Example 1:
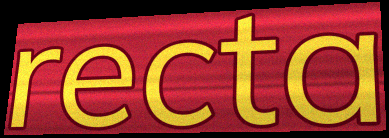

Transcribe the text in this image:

recta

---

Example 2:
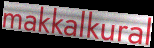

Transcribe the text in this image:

makkalkural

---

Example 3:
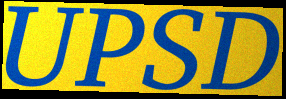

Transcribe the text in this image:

UPSD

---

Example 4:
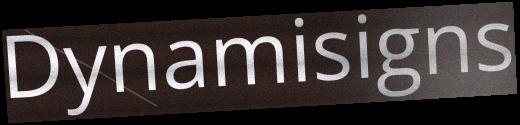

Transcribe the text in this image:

Dynamisigns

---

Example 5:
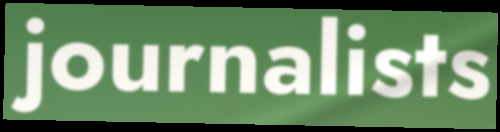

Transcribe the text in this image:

journalists